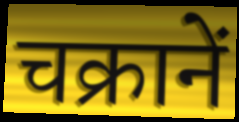
चक्रानें